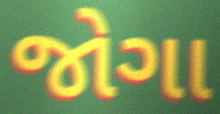
જોગા